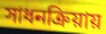
সাধনক্রিয়ায়